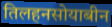
तिलहनसोयाबीन